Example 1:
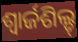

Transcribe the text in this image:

ଶ୍ୱାର୍ଜଶିଲ୍ଡ୍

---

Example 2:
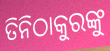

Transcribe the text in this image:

ତିନିଠାକୁରଙ୍କୁ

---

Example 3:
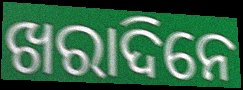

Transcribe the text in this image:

ଖରାଦିନେ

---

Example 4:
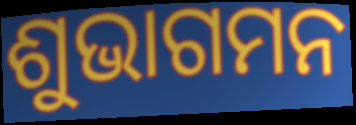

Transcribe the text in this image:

ଶୁଭାଗମନ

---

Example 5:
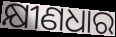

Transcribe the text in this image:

କ୍ଷୀଣଧାର